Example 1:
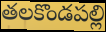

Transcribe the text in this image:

తలకొండపల్లి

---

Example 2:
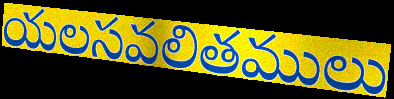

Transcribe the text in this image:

యలసవలితములు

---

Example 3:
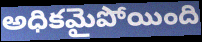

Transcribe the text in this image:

అధికమైపోయింది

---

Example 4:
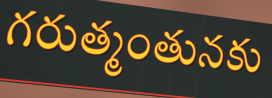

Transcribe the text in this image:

గరుత్మంతునకు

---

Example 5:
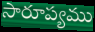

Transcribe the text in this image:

సారూప్యము